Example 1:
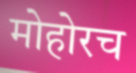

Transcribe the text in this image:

मोहोरच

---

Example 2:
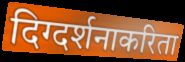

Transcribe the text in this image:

दिग्दर्शनाकरिता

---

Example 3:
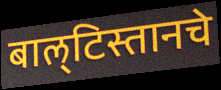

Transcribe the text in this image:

बाल्टिस्तानचे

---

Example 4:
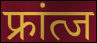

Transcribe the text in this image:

फ्रांत्ज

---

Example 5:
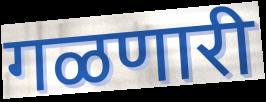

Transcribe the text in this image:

गळणारी